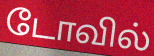
டோவில்